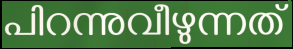
പിറന്നുവീഴുന്നത്